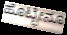
ಹೊಟ್ಟೇನೂ